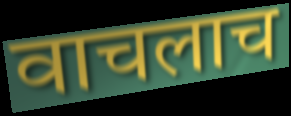
वाचलाच